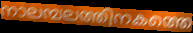
നാലമ്പലത്തിനകത്തെ